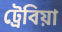
ট্রেবিয়া